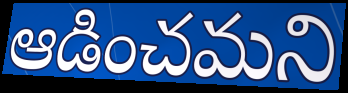
ఆడించమని